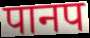
पानप